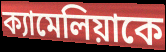
ক্যামেলিয়াকে